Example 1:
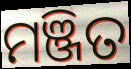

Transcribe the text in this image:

ମଞ୍ଜିତ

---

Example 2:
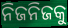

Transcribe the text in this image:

ନିଜନିଜକୁ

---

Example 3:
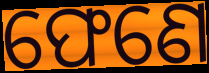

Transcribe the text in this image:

ଫେଣେ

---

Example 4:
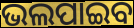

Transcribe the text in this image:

ଭଲପାଇବ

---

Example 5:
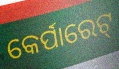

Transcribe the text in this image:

କେର୍ପାରେଟ୍